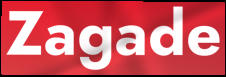
Zagade